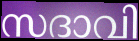
സദാവി